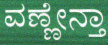
ವಣ್ಣೇನ್ತಾ